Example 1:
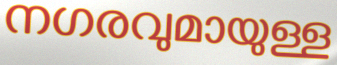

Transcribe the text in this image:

നഗരവുമായുള്ള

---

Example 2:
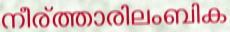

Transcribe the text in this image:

നീര്ത്താരിലംബിക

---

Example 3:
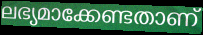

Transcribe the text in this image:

ലഭ്യമാക്കേണ്ടതാണ്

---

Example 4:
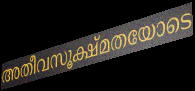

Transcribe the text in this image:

അതീവസൂക്ഷ്മതയോടെ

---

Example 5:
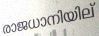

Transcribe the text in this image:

രാജധാനിയില്